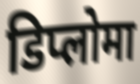
डिप्लोमा